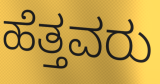
ಹೆತ್ತವರು